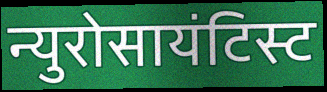
न्युरोसायंटिस्ट